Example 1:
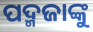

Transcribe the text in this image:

ପଦ୍ମଜାଙ୍କୁ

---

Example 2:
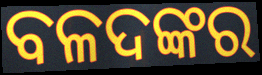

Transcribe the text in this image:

ବଳଦଙ୍କର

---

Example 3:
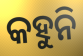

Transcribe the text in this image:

କହୁନି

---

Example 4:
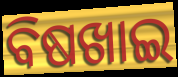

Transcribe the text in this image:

ବିଷଖାଇ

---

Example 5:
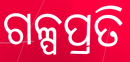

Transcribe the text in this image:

ଗଳ୍ପପ୍ରତି